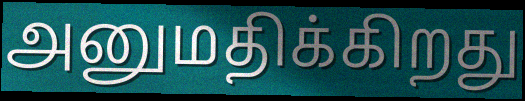
அனுமதிக்கிறது